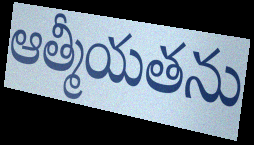
ఆత్మీయతను